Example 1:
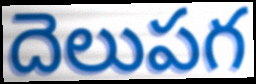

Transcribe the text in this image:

దెలుపగ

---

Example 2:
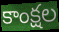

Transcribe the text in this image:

కాంక్షల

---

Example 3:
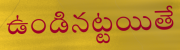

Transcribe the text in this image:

ఉండినట్టయితే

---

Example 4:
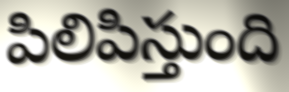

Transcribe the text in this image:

పిలిపిస్తుంది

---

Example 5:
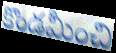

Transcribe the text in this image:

కొండమీంచి